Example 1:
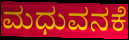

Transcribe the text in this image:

ಮಧುವನಕೆ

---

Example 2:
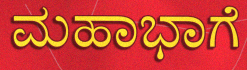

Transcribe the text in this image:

ಮಹಾಭಾಗೆ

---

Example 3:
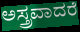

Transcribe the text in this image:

ಅಸ್ತ್ರವಾದರೆ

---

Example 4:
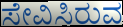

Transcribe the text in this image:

ಸೇವಿಸಿರುವ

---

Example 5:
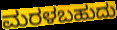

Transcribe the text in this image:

ಮರಳಬಹುದು